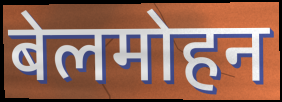
बेलमोहन